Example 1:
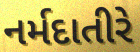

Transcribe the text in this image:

નર્મદાતીરે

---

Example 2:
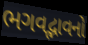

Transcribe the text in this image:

ભગવદ્ભાવનો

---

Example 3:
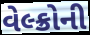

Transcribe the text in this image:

વેલ્ક્રોની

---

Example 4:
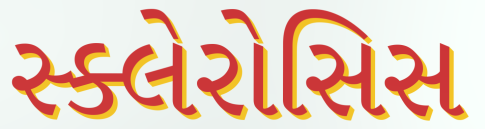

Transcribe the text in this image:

સ્ક્લેરોસિસ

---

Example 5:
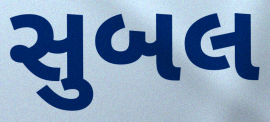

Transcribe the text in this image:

સુબલ